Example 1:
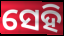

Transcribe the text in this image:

ସେହି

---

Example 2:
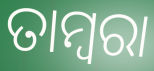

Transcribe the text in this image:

ତାମ୍ବରା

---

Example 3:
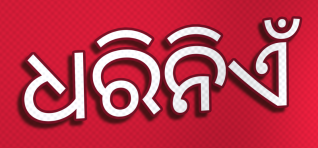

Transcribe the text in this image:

ଧରିନିଏଁ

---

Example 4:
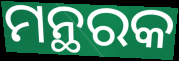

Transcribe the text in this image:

ମନ୍ଥରକ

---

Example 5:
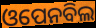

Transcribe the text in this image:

ଓପେନବିଲ